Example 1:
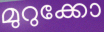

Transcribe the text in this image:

മുറുക്കോ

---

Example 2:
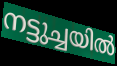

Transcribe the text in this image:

നട്ടുച്ചയിൽ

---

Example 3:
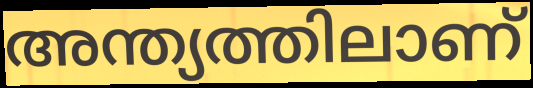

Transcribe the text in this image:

അന്ത്യത്തിലാണ്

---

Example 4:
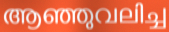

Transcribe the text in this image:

ആഞ്ഞുവലിച്ച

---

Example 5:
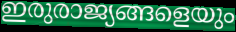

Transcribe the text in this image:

ഇരുരാജ്യങ്ങളെയും